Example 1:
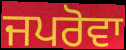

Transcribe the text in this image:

ਜਪਰੋਵਾ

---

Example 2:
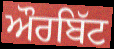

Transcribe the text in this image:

ਔਰਬਿੱਟ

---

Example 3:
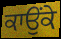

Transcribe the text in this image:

ਕਾਉਂਕੇ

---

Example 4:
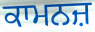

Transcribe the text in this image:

ਕਾਮਨਜ਼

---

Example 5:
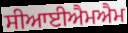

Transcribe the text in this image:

ਸੀਆਈਐਮਐਮ